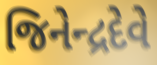
જિનેન્દ્રદેવે